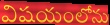
విషయంలోను